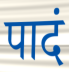
पादं